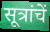
सूत्रांचें